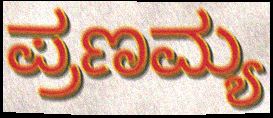
ಪ್ರಣಮ್ಯ